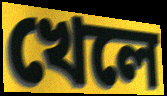
খেলে